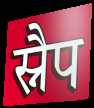
स्नैप